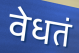
वेधतं